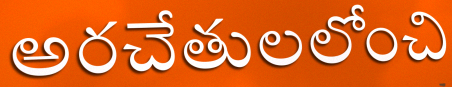
అరచేతులలోంచి